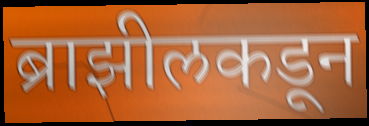
ब्राझीलकडून